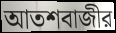
আতশবাজীর